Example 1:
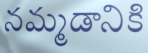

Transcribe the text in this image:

నమ్మడానికి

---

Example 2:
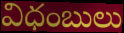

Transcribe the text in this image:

విధంబులు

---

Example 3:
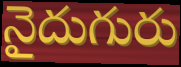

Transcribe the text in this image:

నైదుగురు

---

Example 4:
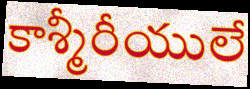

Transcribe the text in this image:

కాశ్మీరీయులే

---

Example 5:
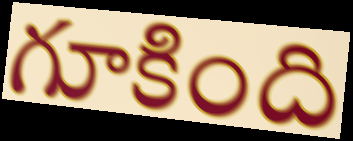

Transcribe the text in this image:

గూకింది